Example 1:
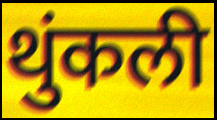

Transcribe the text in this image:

थुंकली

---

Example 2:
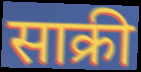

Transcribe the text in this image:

साक्री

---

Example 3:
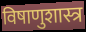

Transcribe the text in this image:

विषाणुशास्त्र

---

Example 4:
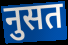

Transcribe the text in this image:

नुसत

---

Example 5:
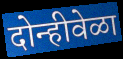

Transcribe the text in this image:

दोन्हीवेळा